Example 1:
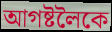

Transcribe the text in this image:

আগষ্টলৈকে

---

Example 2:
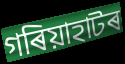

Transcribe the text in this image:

গৰিয়াহাটৰ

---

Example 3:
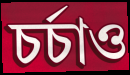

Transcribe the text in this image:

চৰ্চাও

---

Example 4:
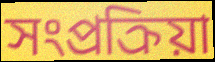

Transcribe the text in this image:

সংপ্ৰক্ৰিয়া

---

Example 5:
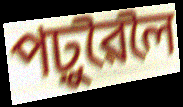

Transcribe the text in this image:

পঢ়ুৱৈলৈ